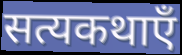
सत्यकथाएँ